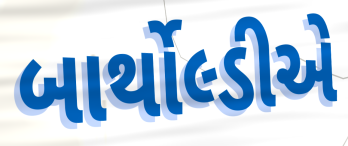
બાર્થોલ્ડીએ